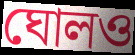
ঘোলও